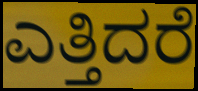
ಎತ್ತಿದರೆ